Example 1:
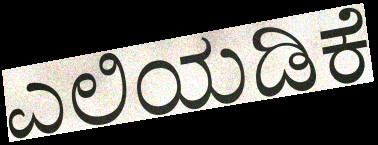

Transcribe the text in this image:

ಎಲಿಯಡಿಕೆ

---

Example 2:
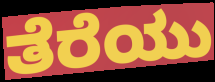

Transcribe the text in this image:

ತೆರೆಯು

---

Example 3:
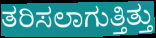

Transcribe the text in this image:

ತರಿಸಲಾಗುತ್ತಿತ್ತು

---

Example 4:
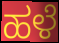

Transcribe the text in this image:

ಹಳೆ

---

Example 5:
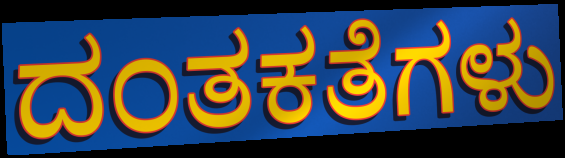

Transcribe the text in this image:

ದಂತಕತೆಗಳು